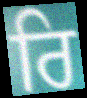
ਰਿ